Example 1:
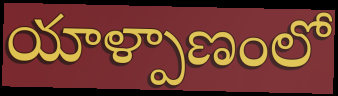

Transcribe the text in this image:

యాళ్పాణంలో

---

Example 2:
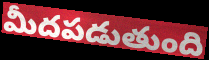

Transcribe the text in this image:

మీదపడుతుంది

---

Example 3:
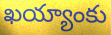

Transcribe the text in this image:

ఖయ్యాంకు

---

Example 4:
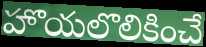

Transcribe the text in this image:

హొయలొలికించే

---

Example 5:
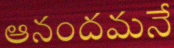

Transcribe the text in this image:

ఆనందమనే